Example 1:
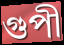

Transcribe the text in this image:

গুপী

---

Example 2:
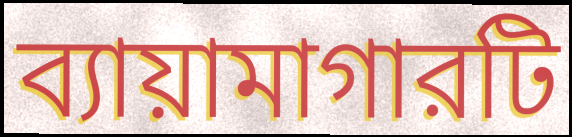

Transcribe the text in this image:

ব্যায়ামাগারটি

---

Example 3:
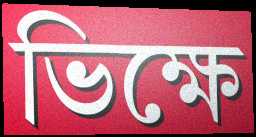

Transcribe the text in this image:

ভিক্ষে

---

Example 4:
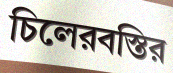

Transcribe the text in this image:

চিলেরবস্তির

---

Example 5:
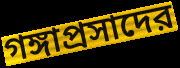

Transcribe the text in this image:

গঙ্গাপ্রসাদের